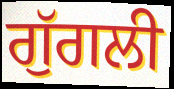
ਗੁੱਗਲੀ